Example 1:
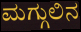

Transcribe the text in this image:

ಮಗ್ಗುಲಿನ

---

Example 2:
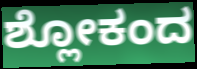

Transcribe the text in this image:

ಶ್ಲೋಕಂದ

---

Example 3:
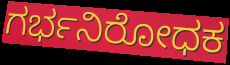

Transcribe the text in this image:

ಗರ್ಭನಿರೋಧಕ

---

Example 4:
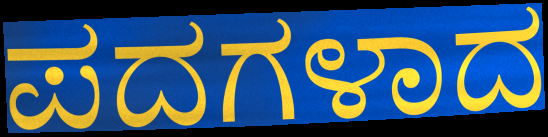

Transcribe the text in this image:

ಪದಗಳಾದ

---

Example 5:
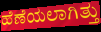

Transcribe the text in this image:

ಹೆಣೆಯಲಾಗಿತ್ತು